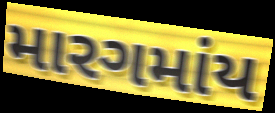
મારગમાંય